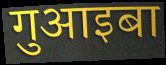
गुआइबा